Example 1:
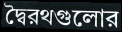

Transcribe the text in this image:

দ্বৈরথগুলোর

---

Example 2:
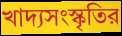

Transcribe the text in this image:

খাদ্যসংস্কৃতির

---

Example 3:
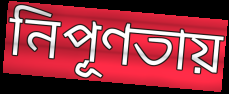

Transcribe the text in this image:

নিপূণতায়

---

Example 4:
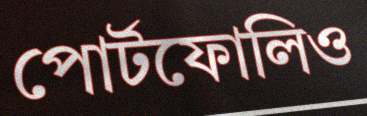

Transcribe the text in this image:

পোর্টফোলিও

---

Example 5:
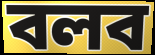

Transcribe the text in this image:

বলব